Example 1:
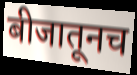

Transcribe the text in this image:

बीजातूनच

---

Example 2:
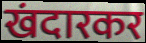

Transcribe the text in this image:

खंदारकर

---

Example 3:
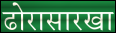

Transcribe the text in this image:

ढोरासारखा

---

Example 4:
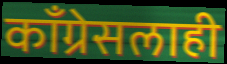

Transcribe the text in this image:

काँग्रेसलाही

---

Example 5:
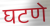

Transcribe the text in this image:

घटणे